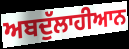
ਅਬਦੁੱਲਾਹੀਆਨ